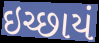
ઇચ્છાયં